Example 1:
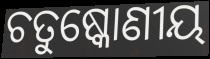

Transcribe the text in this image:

ଚତୁଷ୍କୋଣୀୟ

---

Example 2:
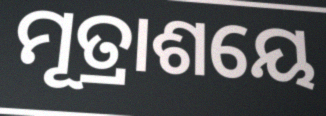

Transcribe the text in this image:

ମୂତ୍ରାଶୟେ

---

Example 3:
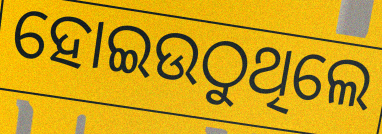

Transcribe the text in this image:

ହୋଇଉଠୁଥିଲେ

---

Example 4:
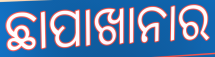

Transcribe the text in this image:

ଛାପାଖାନାର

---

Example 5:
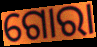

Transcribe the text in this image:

ଗୋରା